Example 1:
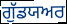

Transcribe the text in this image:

ਗੁੱਡਯਅਰ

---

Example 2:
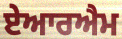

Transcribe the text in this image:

ਏਆਰਐਮ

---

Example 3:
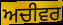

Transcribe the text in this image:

ਅਚੀਵਰ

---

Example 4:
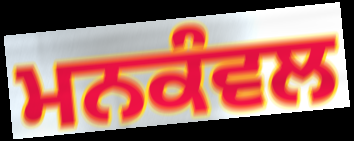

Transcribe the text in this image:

ਮਨਕੰਵਲ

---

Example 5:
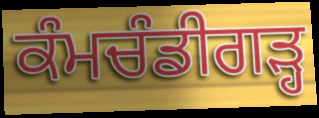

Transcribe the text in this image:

ਕੰਮਚੰਡੀਗੜ੍ਹ